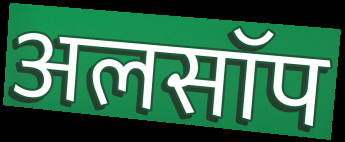
अलसॉप